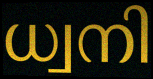
ധ്വനി